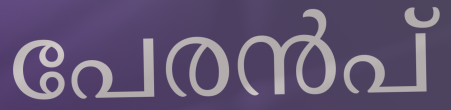
പേരൻപ്